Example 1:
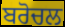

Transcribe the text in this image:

ਬਰੋਚਲ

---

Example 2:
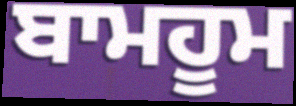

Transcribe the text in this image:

ਬਾਮਹੂਮ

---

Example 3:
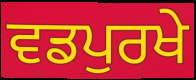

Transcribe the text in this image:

ਵਡਪੁਰਖੇ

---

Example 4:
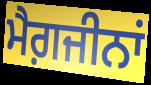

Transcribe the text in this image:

ਮੈਗ਼ਜੀਨਾਂ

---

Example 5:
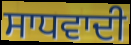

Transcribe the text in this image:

ਸਾਧਵਾਦੀ